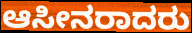
ಆಸೀನರಾದರು